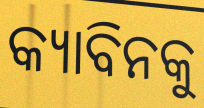
କ୍ୟାବିନକୁ